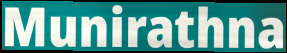
Munirathna